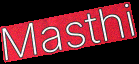
Masthi